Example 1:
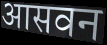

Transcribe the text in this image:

आसवन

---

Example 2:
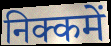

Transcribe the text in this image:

निक्कमें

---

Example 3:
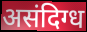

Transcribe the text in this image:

असंदिग्ध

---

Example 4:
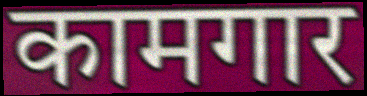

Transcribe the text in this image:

कामगार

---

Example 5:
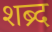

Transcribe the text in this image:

शब्र्द